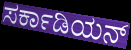
ಸರ್ಕಾಡಿಯನ್